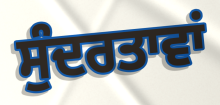
ਸੁੰਦਰਤਾਵਾਂ